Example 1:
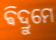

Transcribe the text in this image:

ଵିଦ୍ରୁମେ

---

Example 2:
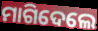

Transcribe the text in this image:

ମାଗିଦେଲେ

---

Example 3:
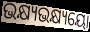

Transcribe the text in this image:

ଭକ୍ଷ୍ୟଭକ୍ଷ୍ୟୟୋ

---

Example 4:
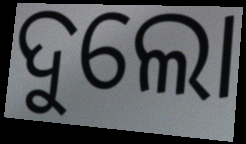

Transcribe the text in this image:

ଦୁଲୋ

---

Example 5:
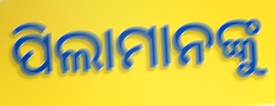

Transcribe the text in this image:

ପିଲାମାନଙ୍କୁ